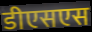
डीएसएस